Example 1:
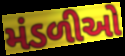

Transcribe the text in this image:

મંડળીઓ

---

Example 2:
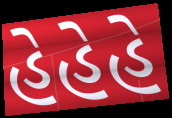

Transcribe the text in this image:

હેહેહે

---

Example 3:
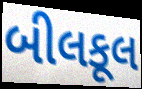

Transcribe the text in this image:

બીલકૂલ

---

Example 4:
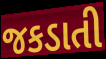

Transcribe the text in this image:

જકડાતી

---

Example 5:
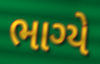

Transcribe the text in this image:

ભાગ્યે